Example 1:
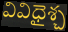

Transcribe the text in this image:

వివిధైశ్చ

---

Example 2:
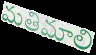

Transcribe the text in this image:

మతిమాలి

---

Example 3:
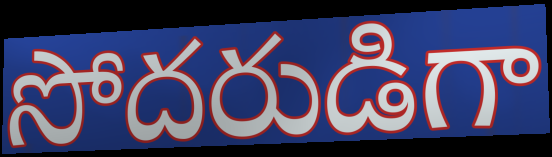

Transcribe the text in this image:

సోదరుడిగా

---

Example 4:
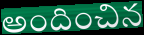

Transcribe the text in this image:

అందించిన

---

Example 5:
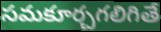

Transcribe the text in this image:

సమకూర్చగలిగితే